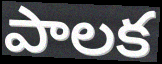
పాలక